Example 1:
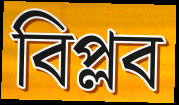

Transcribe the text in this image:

বিপ্লব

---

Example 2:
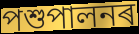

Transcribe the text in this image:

পশুপালনৰ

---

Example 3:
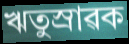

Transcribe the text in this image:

ঋতুস্ৰাৱক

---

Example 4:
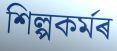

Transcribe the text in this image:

শিল্পকৰ্মৰ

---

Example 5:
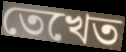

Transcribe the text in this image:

তেখেত